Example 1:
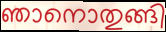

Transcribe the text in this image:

ഞാനൊതുങ്ങി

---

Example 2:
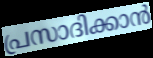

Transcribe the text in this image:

പ്രസാദിക്കാൻ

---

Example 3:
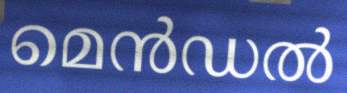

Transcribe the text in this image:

മെൻഡൽ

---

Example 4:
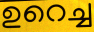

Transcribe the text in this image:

ഉറെച്ച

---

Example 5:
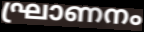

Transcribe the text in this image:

ഘ്രാണനം